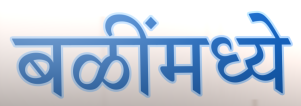
बळींमध्ये